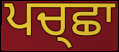
ਪਚ੍ਛਾ